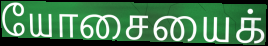
யோசையைக்